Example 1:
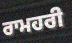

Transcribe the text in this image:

ਰਾਮਹਰੀ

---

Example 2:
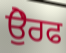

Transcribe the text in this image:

ਉੇਰਫ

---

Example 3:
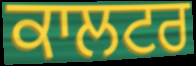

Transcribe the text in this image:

ਕਾਲਟਰ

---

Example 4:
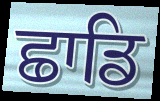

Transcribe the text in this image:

ਛਾਡਿ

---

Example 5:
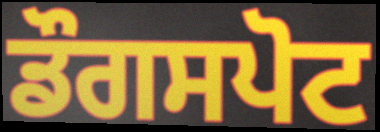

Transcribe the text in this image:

ਡੌਗਸਪੋਟ